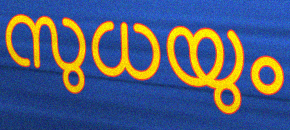
സുധയും